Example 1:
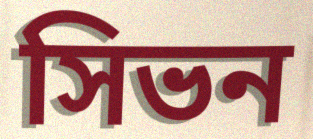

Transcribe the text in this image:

সিভন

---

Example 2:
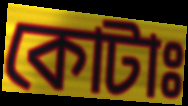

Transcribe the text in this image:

কোটাঃ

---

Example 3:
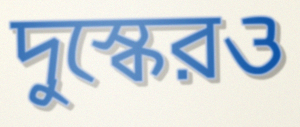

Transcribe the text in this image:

দুস্কেরও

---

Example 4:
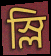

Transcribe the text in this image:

স্লি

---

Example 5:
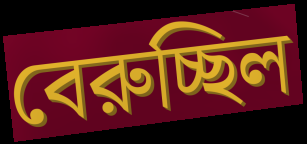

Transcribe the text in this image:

বেরুচ্ছিল